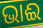
ଭାଈ